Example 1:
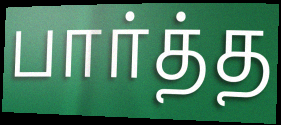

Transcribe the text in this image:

பார்த்த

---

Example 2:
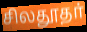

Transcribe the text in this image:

சிலதூதர்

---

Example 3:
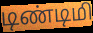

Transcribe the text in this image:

டிண்டிமி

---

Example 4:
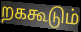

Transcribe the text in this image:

றககூடும்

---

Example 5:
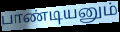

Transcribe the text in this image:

பாண்டியனும்